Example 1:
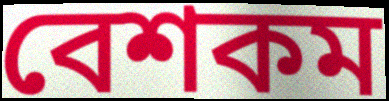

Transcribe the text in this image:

বেশকম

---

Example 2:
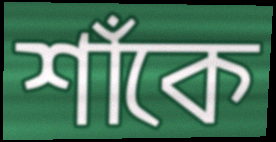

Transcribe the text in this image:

শাঁকে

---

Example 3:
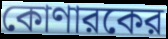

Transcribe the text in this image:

কোণারকের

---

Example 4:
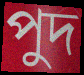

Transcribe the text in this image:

পুদ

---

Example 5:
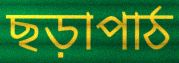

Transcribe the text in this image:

ছড়াপাঠ